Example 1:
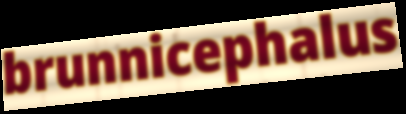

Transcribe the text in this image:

brunnicephalus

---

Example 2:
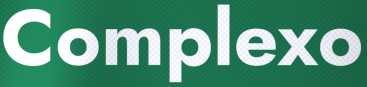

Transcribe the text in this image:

Complexo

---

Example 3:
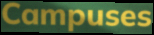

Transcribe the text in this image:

Campuses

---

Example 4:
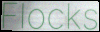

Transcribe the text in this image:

Flocks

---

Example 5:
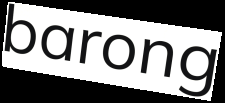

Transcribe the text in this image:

barong